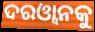
ଦରଓ୍ୱାନକୁ